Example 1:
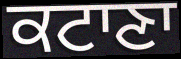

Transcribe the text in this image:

ਕਟਾਣਾ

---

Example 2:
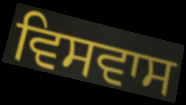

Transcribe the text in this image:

ਵਿਸਵਾਸ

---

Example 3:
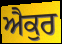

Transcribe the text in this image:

ਐਕੁਰ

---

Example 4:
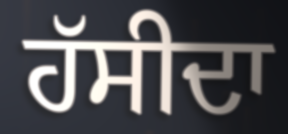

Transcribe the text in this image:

ਹੱਸੀਦਾ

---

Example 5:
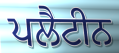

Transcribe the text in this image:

ਪਲੈਟੀਨ